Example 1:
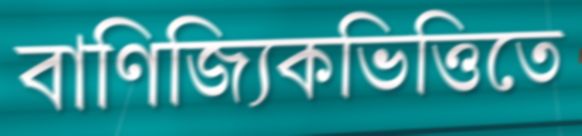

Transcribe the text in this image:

বাণিজ্যিকভিত্তিতে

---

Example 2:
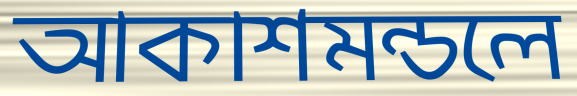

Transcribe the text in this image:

আকাশমন্ডলে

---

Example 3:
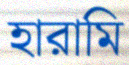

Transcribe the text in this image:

হারামি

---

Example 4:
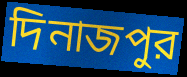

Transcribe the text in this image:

দিনাজপুর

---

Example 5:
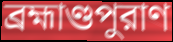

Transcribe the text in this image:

ব্রহ্মাণ্ডপুরাণ